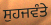
ਸੁਹਜਵੰਤੇ